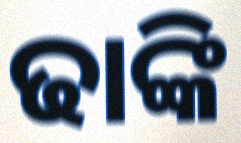
ଢାଙ୍କି